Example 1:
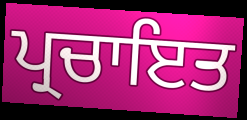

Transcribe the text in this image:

ਪ੍ਰਚਾਇਤ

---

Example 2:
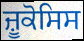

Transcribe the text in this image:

ਜ਼ੂਕੋਸਿਸ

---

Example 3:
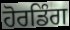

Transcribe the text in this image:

ਹੋਰਡਿੰਗ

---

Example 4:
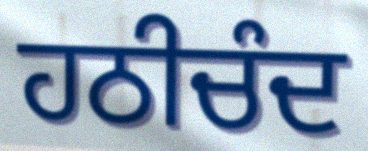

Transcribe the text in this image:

ਹਠੀਚੰਦ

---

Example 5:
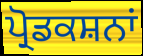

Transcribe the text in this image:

ਪ੍ਰੋਡਕਸ਼ਨਾਂ